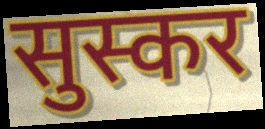
सुस्कर